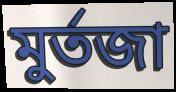
মুর্তজা